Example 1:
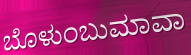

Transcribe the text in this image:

ಬೊಳುಂಬುಮಾವಾ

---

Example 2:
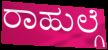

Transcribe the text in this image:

ರಾಹುಲ್ಗೆ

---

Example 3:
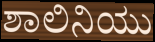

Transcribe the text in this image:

ಶಾಲಿನಿಯು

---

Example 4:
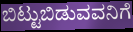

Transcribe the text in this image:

ಬಿಟ್ಟುಬಿಡುವವನಿಗೆ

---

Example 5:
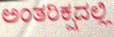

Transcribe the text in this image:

ಅಂತರಿಕ್ಷದಲ್ಲಿ